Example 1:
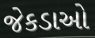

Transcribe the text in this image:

જેકડાઓ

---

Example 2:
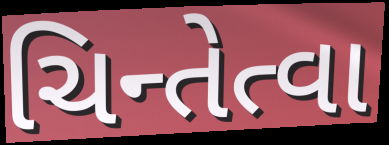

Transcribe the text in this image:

ચિન્તેત્વા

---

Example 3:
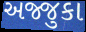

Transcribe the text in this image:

અજ્જુકા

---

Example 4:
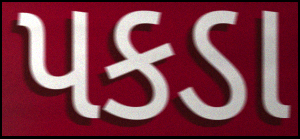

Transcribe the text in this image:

પકડા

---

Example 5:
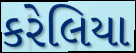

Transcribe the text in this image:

કરેલિયા